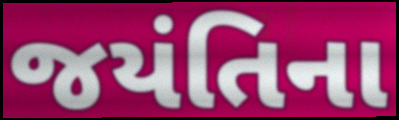
જયંતિના